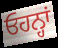
ਓਹਨ੍ਹਾਂ